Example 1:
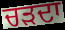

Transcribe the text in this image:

ਚੜਦਾ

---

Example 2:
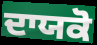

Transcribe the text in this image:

ਦਾਯਕੋ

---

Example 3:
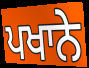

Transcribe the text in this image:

ਪਖਾਨੇ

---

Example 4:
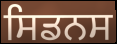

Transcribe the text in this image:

ਸਿਡਨਸ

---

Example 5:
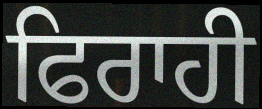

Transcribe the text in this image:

ਫਿਰਾਹੀ